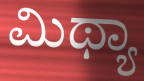
ಮಿಥ್ಯಾ